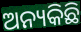
ଅନ୍ୟକିଛି